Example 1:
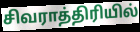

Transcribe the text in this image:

சிவராத்திரியில்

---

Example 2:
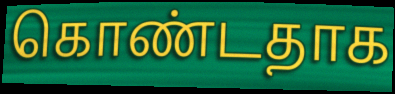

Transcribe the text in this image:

கொண்டதாக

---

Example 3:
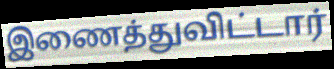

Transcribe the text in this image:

இணைத்துவிட்டார்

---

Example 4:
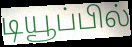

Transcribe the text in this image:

டியூப்பில்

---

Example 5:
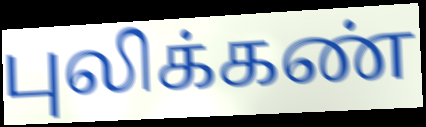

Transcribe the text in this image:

புலிக்கண்